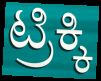
ಟ್ರಿಕ್ಕಿ